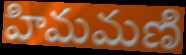
హిమమణి